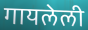
गायलेली